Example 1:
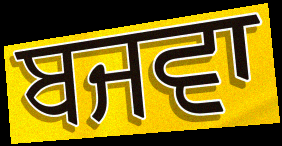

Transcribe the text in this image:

ਬਜਵਾ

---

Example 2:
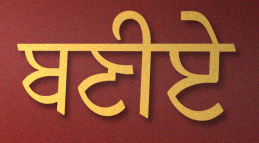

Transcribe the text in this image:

ਬਣੀਏ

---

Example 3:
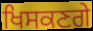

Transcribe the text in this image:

ਖਿਸਕਣਗੇ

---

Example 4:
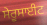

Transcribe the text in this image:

ਸੇਰੂਸਾਈਟ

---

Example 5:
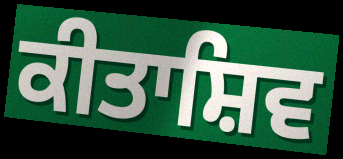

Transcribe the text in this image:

ਕੀਤਾਸ਼ਿਵ